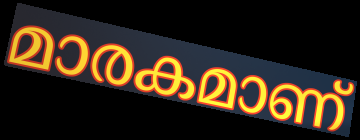
മാരകമാണ്